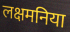
लक्षमनिया